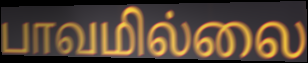
பாவமில்லை